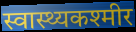
स्वास्थ्यकश्‍मीर